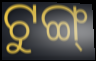
ଟୁଙ୍ଗ୍